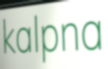
kalpna